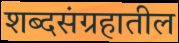
शब्दसंग्रहातील